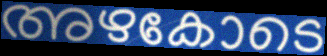
അഴകോടെ